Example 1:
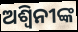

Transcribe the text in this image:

ଅଶ୍ୱିନୀଙ୍କ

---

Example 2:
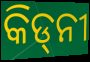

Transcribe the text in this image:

କିଡ୍‍ନୀ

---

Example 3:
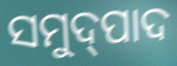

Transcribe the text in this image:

ସମୁଦ୍‌ପାଦ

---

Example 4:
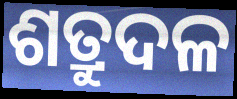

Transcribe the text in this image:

ଶତ୍ରୁଦଳ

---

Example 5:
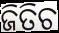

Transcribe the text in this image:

ଜିତିଚ